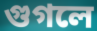
গুগলে